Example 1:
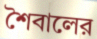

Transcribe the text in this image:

শৈবালের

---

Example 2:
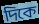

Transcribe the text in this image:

দিকে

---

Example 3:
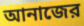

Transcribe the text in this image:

আনাজের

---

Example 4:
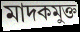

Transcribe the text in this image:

মাদকমুক্ত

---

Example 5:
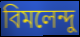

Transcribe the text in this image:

বিমলেন্দু